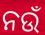
ନଉଁ